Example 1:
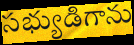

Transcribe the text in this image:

సభ్యుడిగాను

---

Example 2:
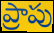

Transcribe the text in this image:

ప్రాపు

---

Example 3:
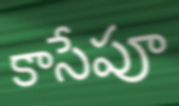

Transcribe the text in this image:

కాసేపూ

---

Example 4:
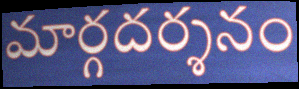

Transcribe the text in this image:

మార్గదర్శనం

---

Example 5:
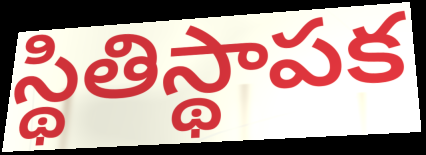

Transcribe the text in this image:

స్థితిస్థాపక